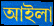
আইলা